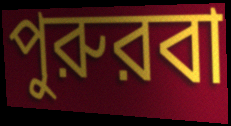
পুরুরবা